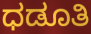
ಧಡೂತಿ